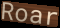
Roar